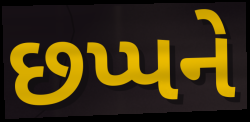
છપ્પને